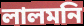
লালমনি